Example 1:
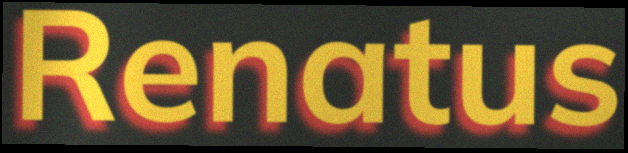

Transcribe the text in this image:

Renatus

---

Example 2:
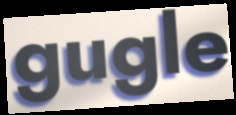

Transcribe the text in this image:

gugle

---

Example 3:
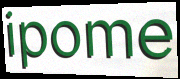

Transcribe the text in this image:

ipome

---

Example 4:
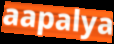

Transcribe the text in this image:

aapalya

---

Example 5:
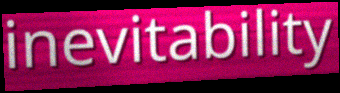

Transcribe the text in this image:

inevitability